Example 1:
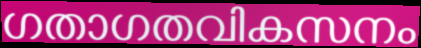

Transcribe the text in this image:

ഗതാഗതവികസനം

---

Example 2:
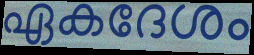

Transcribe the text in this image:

ഏകദേശം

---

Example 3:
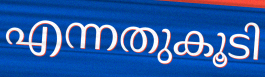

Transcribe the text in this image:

എന്നതുകൂടി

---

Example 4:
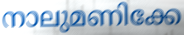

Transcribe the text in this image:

നാലുമണിക്കേ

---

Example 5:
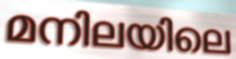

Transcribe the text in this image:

മനിലയിലെ